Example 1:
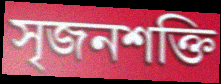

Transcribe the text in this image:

সৃজনশক্তি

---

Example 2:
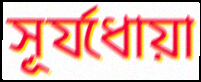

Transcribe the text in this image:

সূর্যধোয়া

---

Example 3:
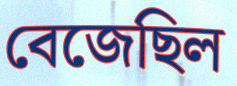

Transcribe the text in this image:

বেজেছিল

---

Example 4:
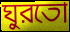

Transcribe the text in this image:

ঘুরতো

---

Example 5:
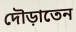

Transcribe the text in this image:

দৌড়াতেন